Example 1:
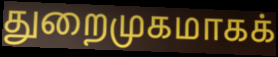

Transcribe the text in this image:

துறைமுகமாகக்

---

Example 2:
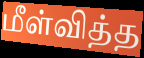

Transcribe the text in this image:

மீள்வித்த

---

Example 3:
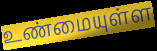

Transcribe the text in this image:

உண்மையுள்ள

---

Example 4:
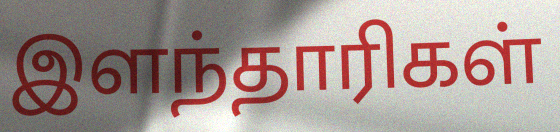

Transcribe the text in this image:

இளந்தாரிகள்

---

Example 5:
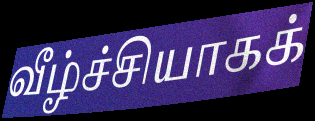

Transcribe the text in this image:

வீழ்ச்சியாகக்